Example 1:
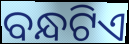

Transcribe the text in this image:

ବନ୍ଧଟିଏ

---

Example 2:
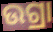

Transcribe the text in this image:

ଉଗ୍ରା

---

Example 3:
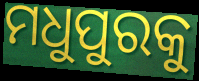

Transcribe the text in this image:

ମଧୁପୁରକୁ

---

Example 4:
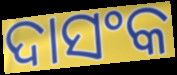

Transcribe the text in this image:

ଦାସଂକ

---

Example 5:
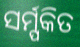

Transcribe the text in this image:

ସର୍ମ୍ପକିତ